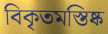
বিকৃতমস্তিষ্ক